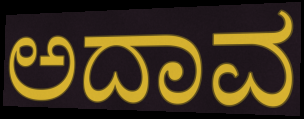
ಅದಾವ